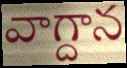
వాగ్దాన